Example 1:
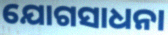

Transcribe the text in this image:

ଯୋଗସାଧନା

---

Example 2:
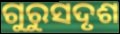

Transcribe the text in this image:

ଗୁରୁସଦୃଶ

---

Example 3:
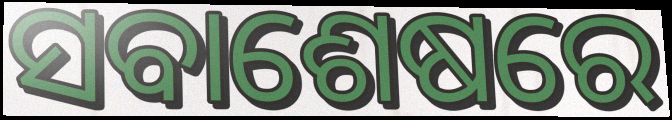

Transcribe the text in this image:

ସବାଶେଷରେ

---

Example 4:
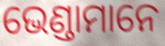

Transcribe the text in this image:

ଭେଣ୍ଡାମାନେ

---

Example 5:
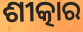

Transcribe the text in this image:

ଶୀତ୍କାର